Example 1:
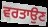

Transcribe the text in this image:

ਵਰਤਾਉਣ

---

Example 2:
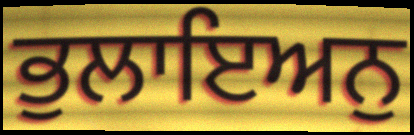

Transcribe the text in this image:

ਭੁਲਾਇਅਨੁ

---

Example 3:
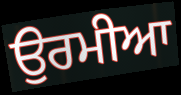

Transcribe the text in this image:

ਉਰਮੀਆ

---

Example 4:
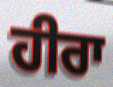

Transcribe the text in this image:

ਹੀਰਾ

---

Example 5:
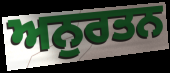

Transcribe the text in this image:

ਅਨੁਰਤਨ